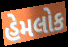
હેમલોક